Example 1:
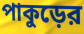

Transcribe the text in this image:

পাকুড়ের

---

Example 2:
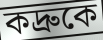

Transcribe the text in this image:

কদ্রুকে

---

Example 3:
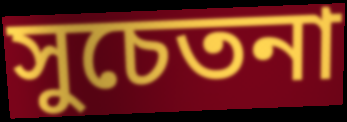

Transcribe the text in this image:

সুচেতনা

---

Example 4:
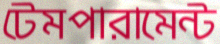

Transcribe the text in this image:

টেমপারামেন্ট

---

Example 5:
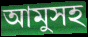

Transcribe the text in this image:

আমুসহ